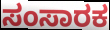
ಸಂಸಾರಕ